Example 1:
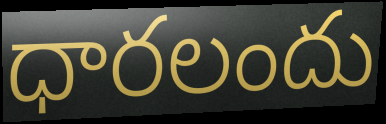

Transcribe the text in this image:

ధారలందు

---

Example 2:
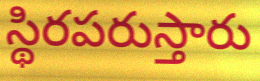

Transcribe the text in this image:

స్థిరపరుస్తారు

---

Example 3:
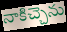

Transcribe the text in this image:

నాకిచ్చెను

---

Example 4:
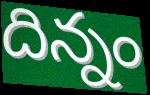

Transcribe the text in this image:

దిన్నం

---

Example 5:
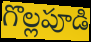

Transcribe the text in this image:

గొల్లపూడి